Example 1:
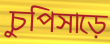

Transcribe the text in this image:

চুপিসাড়ে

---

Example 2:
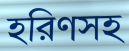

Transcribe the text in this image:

হরিণসহ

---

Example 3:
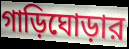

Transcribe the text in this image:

গাড়িঘোড়ার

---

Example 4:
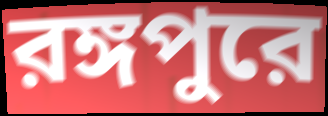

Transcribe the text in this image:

রঙ্গপুরে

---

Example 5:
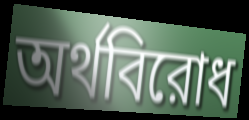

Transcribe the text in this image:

অর্থবিরোধ